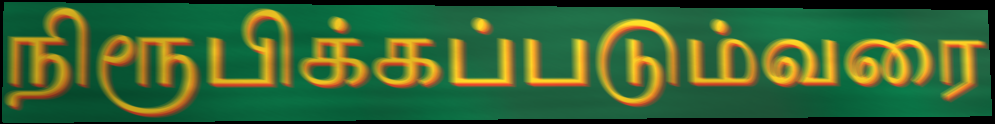
நிரூபிக்கப்படும்வரை